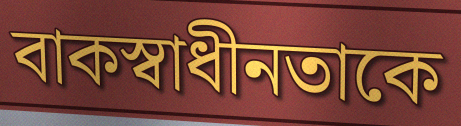
বাকস্বাধীনতাকে